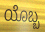
ಯೊಬ್ಬ